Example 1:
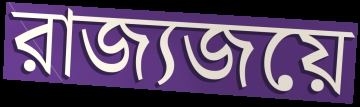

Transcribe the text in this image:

রাজ্যজয়ে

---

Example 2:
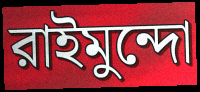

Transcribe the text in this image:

রাইমুন্দো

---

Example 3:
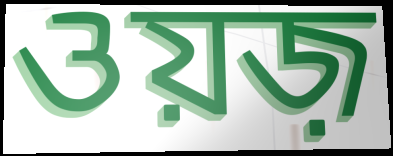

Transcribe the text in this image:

ওয়জ়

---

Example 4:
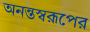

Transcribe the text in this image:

অনন্তস্বরূপের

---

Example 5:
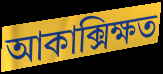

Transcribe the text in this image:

আকাক্সিক্ষত